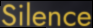
Silence